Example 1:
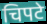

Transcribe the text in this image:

चिपटे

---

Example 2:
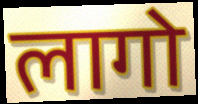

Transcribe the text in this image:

लागो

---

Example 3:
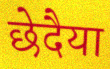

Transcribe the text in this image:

छेदैया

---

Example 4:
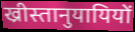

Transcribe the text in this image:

ख्रीस्तानुयायियों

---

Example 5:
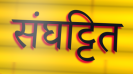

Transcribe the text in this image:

संघट्टित